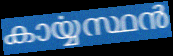
കാൎയ്യസ്ഥൻ